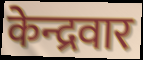
केन्‍द्रवार